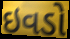
ઇવડો